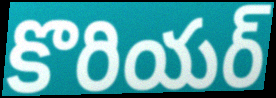
కొరియర్